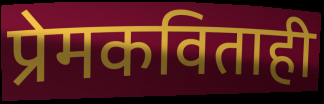
प्रेमकविताही